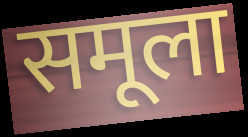
समूला